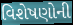
વિશેષણોની